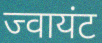
ज्वायंट